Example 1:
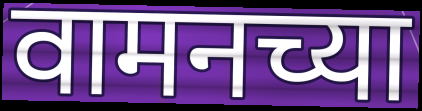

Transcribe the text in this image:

वामनच्या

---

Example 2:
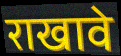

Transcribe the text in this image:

राखावे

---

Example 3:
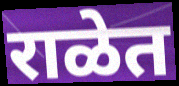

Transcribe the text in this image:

राळेत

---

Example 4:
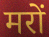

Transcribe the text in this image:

मरों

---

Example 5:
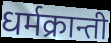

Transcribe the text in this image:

धर्मक्रान्ती